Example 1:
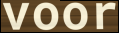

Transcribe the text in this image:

voor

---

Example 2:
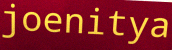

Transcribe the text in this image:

joenitya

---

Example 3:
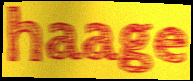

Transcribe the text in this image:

haage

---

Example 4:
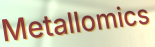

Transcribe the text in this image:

Metallomics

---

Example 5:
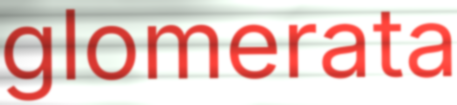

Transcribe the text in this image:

glomerata